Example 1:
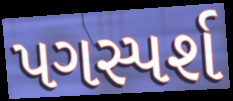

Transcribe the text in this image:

પગસ્પર્શ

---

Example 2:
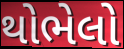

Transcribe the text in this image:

થોભેલો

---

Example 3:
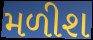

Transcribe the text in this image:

મળીશ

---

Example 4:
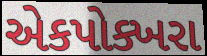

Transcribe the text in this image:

એકપોક્ખરા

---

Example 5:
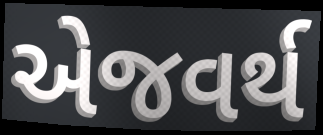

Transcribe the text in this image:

એજવર્થ